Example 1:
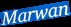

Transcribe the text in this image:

Marwan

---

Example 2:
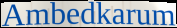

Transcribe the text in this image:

Ambedkarum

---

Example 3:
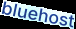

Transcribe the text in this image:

bluehost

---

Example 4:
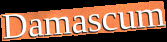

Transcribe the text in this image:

Damascum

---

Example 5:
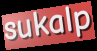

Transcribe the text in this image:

sukalp